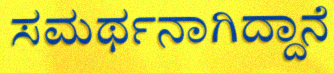
ಸಮರ್ಥನಾಗಿದ್ದಾನೆ